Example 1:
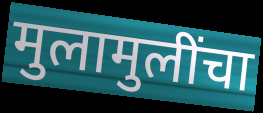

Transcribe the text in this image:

मुलामुलींचा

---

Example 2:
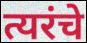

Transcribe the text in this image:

त्यरंचे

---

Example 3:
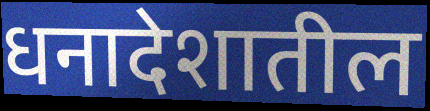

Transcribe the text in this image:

धनादेशातील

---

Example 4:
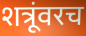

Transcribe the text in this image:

शत्रूंवरच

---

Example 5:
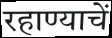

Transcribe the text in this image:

रहाण्याचें